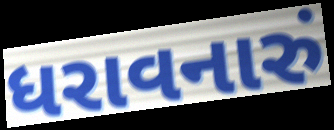
ધરાવનારું